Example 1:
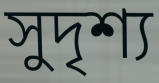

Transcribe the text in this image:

সুদৃশ্য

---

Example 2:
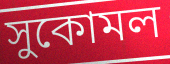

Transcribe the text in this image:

সুকোমল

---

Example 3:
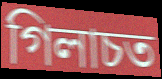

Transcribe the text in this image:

গিলাচত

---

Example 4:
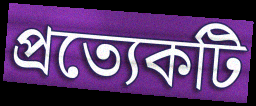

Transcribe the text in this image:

প্ৰত্যেকটি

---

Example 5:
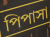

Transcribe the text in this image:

পিপাসা